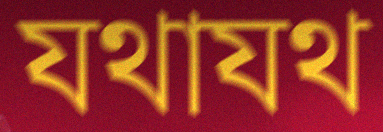
যথাযথ